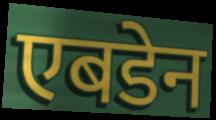
एबडेन